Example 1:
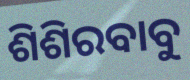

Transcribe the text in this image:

ଶିଶିରବାବୁ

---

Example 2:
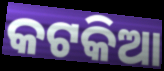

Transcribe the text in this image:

କଟକିଆ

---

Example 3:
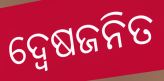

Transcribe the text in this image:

ଦ୍ଵେଷଜନିତ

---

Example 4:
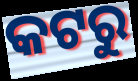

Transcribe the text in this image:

କଟରୁ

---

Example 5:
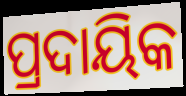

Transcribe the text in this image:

ପ୍ରଦାୟିକ